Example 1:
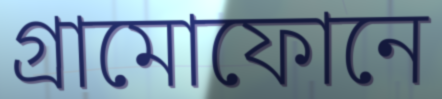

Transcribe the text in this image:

গ্রামোফোনে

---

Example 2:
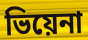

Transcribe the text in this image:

ভিয়েনা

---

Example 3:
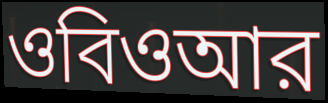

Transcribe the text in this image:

ওবিওআর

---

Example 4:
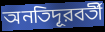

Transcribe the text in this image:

অনতিদূরবর্তী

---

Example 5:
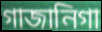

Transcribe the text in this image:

গাজানিগা